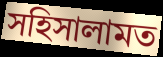
সহিসালামত